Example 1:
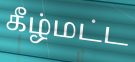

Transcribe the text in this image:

கீழ்மட்ட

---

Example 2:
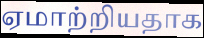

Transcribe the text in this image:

ஏமாற்றியதாக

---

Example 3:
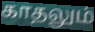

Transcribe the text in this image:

காதலும்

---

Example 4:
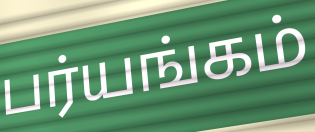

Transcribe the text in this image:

பர்யங்கம்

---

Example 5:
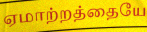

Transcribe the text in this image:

ஏமாற்றத்தையே